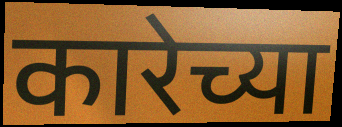
कारेच्या